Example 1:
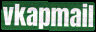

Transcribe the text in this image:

vkapmail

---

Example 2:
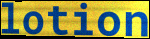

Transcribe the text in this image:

lotion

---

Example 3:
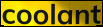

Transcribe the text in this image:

coolant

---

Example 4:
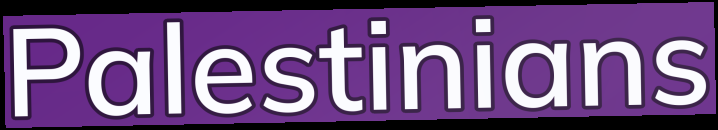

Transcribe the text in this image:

Palestinians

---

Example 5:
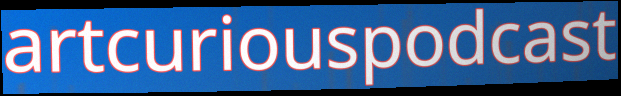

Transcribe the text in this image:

artcuriouspodcast